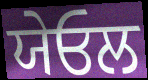
ਯੇਓਲ